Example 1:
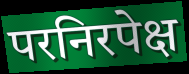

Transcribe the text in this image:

परनिरपेक्ष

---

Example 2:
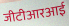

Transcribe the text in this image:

जीटीआरआई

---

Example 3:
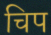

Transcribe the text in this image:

चिप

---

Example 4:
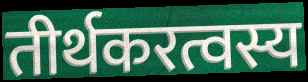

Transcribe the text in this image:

तीर्थकरत्वस्य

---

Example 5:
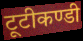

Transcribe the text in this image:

टूटीकण्डी